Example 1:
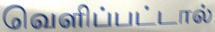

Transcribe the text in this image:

வெளிப்பட்டால்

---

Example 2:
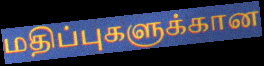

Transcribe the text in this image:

மதிப்புகளுக்கான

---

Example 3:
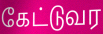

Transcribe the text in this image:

கேட்டுவர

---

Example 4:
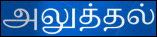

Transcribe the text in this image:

அலுத்தல்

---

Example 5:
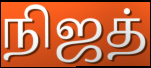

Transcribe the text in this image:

நிஜத்